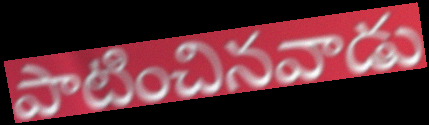
పాటించినవాడు